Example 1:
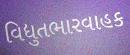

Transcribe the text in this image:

વિદ્યુતભારવાહક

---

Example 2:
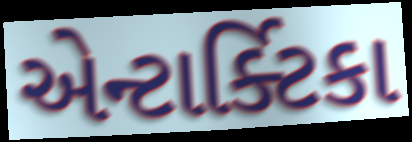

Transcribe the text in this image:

એન્ટાર્ક્ટિકા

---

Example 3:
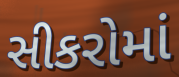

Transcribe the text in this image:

સીકરોમાં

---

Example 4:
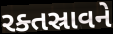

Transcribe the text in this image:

રક્તસ્રાવને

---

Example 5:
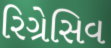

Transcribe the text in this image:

રિગ્રેસિવ